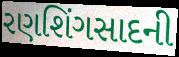
રણશિંગસાદની